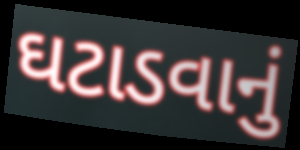
ઘટાડવાનું